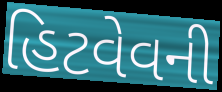
હિટવેવની